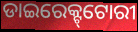
ଡାଇରେକ୍ଟ୍‌ଟୋରୀ